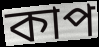
কাপ